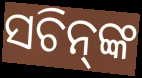
ସଚିନ୍‌ଙ୍କ